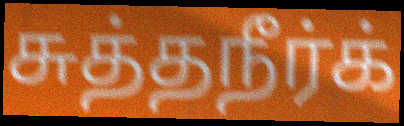
சுத்தநீர்க்